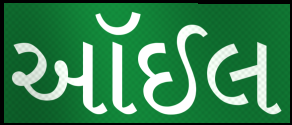
આૅઈલ